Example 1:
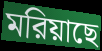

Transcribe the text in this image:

মরিয়াছে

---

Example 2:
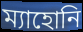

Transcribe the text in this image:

ম্যাহোনি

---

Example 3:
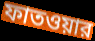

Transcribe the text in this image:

ফাতওয়ার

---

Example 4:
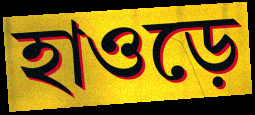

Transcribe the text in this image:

হাওড়ে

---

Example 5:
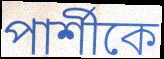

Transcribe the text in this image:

পার্শীকে